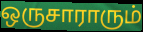
ஒருசாராரும்